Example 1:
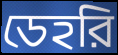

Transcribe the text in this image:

ডেহরি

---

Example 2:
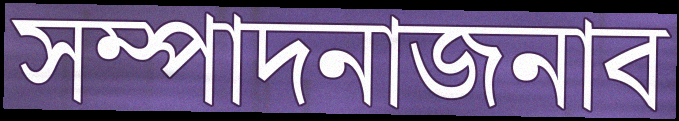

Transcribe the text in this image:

সম্পাদনাজনাব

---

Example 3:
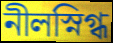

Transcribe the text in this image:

নীলস্নিগ্ধ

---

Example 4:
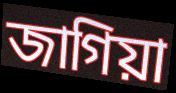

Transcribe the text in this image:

জাগিয়া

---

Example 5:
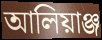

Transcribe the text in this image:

আলিয়াঞ্জ